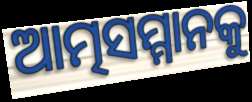
ଆତ୍ମସମ୍ମାନକୁ